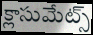
క్లాసుమేట్స్